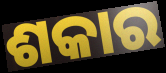
ଶକାର